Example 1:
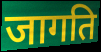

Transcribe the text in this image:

जागति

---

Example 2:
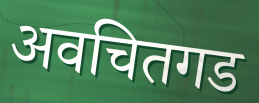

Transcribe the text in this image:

अवचितगड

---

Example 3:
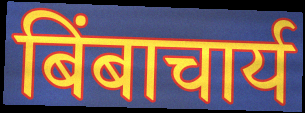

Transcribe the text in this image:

बिंबाचार्य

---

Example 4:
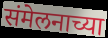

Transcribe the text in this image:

संमेलनाच्या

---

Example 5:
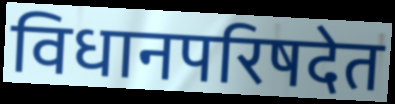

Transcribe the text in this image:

विधानपरिषदेत